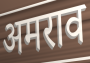
अमराव